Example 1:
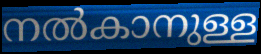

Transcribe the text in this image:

നൽകാനുള്ള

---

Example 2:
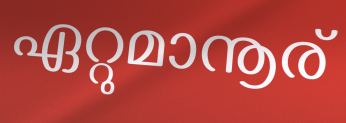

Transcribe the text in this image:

ഏറ്റുമാനൂര്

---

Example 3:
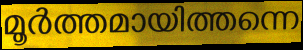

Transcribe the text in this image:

മൂർത്തമായിത്തന്നെ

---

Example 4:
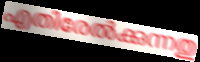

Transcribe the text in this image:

എതിരേൽക്കുന്നതു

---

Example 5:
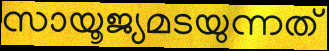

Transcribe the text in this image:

സായൂജ്യമടയുന്നത്